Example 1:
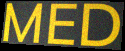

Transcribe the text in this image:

MED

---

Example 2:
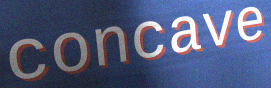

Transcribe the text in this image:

concave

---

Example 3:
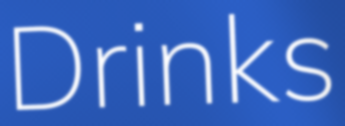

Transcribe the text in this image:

Drinks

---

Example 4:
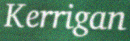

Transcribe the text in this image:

Kerrigan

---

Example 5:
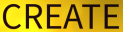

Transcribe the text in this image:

CREATE